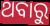
ଥବାରୁ